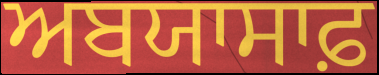
ਅਬਯਾਸਾਫ਼